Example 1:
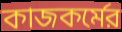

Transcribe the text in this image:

কাজকর্মের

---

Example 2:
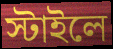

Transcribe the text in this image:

স্টাইলে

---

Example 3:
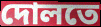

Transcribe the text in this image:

দোলতে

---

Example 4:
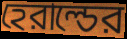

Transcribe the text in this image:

হেরাল্ডের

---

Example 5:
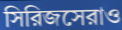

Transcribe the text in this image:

সিরিজসেরাও